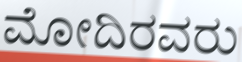
ಮೋದಿರವರು